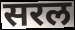
सरल